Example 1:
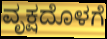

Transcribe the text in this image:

ವೃಕ್ಷದೊಳಗೆ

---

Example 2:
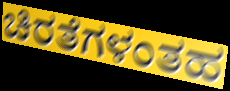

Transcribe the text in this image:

ಚಿರತೆಗಳಂತಹ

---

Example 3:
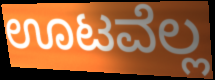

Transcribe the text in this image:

ಊಟವೆಲ್ಲ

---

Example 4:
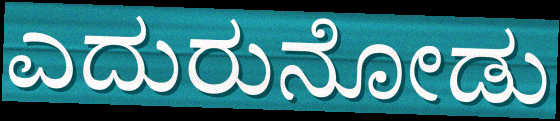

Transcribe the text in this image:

ಎದುರುನೋಡು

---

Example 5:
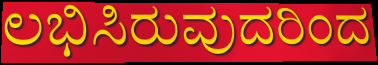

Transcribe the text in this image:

ಲಭಿಸಿರುವುದರಿಂದ